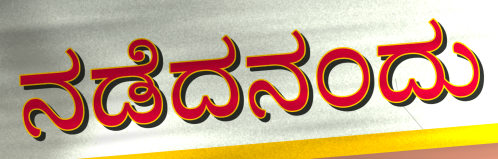
ನಡೆದನಂದು